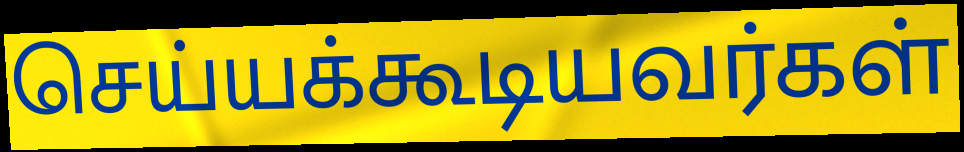
செய்யக்கூடியவர்கள்